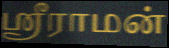
ஸ்ரீராமன்